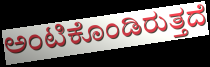
ಅಂಟಿಕೊಂಡಿರುತ್ತದೆ